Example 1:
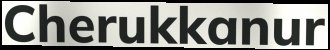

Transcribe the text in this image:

Cherukkanur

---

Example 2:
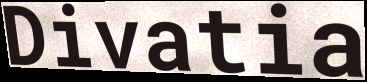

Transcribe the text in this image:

Divatia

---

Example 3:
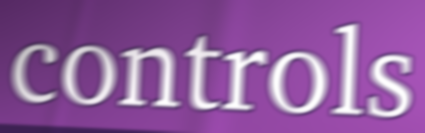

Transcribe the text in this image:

controls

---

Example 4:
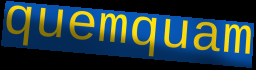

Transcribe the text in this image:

quemquam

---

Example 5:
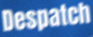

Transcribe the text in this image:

Despatch